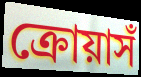
ক্রোয়াসঁ